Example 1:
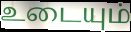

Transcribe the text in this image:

உடையும்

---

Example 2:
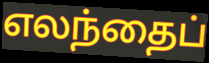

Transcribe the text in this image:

எலந்தைப்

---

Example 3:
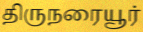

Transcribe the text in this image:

திருநரையூர்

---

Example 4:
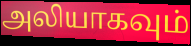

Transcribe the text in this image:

அலியாகவும்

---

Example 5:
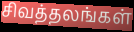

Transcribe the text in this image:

சிவத்தலங்கள்